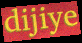
dijiye